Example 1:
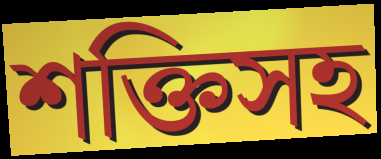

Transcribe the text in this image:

শক্তিসহ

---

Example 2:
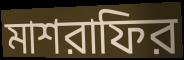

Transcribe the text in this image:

মাশরাফির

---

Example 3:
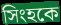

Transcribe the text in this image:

সিংহকে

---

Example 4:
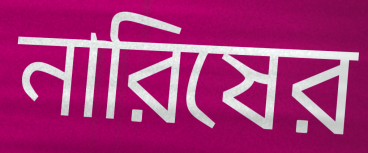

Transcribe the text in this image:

নারিষের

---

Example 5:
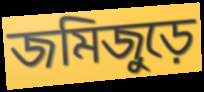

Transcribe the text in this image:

জমিজুড়ে